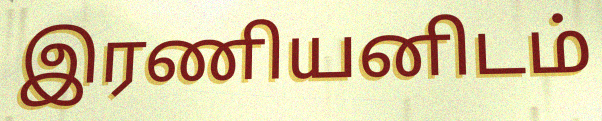
இரணியனிடம்